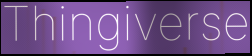
Thingiverse